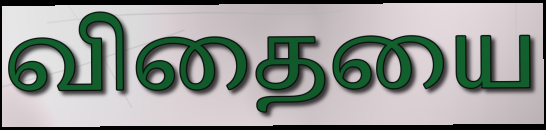
விதையை